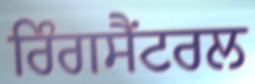
ਰਿੰਗਸੈਂਟਰਲ